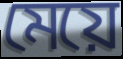
মেয়ে